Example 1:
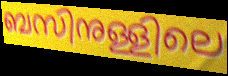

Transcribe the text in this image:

ബസിനുള്ളിലെ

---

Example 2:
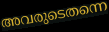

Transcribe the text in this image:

അവരുടെതന്നെ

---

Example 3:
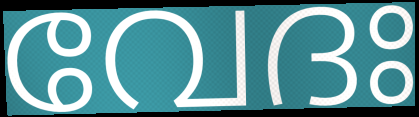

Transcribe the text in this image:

വേദഃ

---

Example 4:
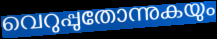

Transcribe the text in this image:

വെറുപ്പുതോന്നുകയും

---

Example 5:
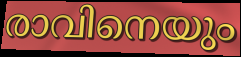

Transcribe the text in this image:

രാവിനെയും